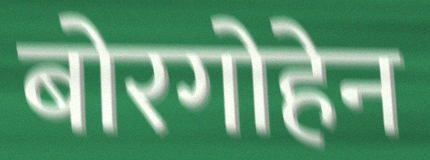
बोरगोहेन